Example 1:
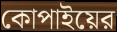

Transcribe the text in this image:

কোপাইয়ের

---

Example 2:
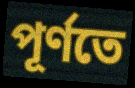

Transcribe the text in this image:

পূর্ণতে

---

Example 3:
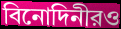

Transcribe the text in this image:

বিনোদিনীরও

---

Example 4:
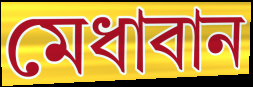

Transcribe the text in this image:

মেধাবান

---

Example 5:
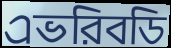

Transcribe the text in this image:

এভরিবডি